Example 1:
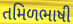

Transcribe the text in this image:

તમિળભાષી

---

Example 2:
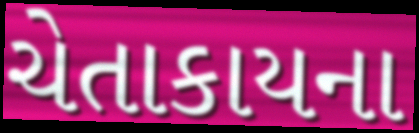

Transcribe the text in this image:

ચેતાકાયના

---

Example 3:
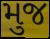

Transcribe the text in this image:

મુજ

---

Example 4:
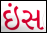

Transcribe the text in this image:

ઇંસ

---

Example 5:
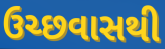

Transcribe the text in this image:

ઉચ્છવાસથી